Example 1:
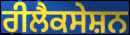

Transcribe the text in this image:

ਰੀਲੈਕਸੇਸ਼ਨ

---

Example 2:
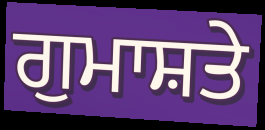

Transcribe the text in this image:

ਗੁਮਾਸ਼ਤੇ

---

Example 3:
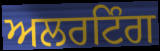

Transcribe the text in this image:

ਅਲਰਟਿੰਗ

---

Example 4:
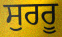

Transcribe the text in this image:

ਸੁਰਰੂ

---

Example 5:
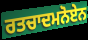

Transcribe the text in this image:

ਰਤਚਾਦਮਨੋਏਨ